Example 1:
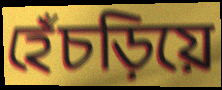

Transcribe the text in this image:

হেঁচড়িয়ে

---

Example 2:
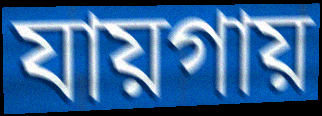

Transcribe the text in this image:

যায়গায়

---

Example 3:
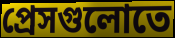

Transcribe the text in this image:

প্রেসগুলোতে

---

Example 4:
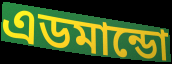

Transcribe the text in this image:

এডমান্ডো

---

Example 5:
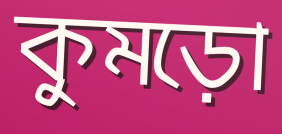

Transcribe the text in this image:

কুমড়ো